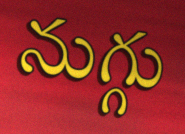
నుగ్గు